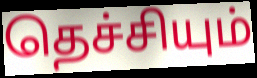
தெச்சியும்